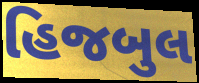
હિજબુલ